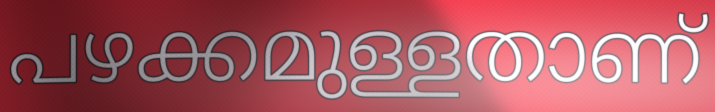
പഴക്കമുള്ളതാണ്